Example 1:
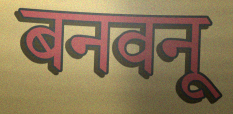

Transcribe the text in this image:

बनवनू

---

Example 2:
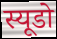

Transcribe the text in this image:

स्यूडो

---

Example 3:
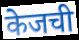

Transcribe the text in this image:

केजची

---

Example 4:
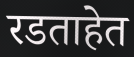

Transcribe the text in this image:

रडताहेत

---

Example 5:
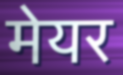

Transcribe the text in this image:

मेयर